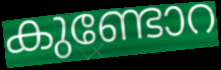
കുണ്ടോറ